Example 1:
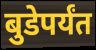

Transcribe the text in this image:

बुडेपर्यंत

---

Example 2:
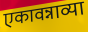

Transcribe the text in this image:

एकावन्नाव्या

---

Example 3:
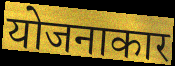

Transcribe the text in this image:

योजनाकार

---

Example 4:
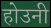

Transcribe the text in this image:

होउनी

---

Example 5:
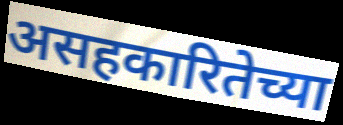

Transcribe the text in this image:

असहकारितेच्या